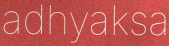
adhyaksa